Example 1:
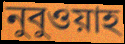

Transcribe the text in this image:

নুবুওয়াহ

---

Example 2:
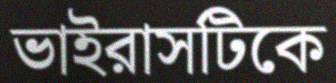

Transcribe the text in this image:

ভাইরাসটিকে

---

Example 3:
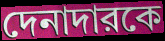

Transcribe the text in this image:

দেনাদারকে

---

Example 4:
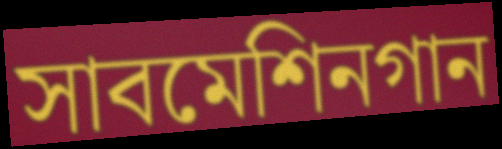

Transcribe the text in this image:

সাবমেশিনগান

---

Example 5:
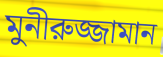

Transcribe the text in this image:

মুনীরুজ্জামান